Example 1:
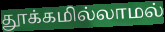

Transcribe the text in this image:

தூக்கமில்லாமல்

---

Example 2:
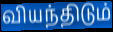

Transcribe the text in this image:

வியந்திடும்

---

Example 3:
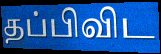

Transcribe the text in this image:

தப்பிவிட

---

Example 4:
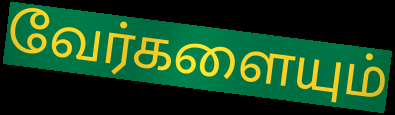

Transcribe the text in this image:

வேர்களையும்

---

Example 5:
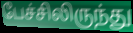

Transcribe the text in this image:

பேச்சிலிருந்து